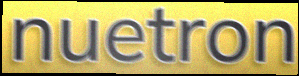
nuetron